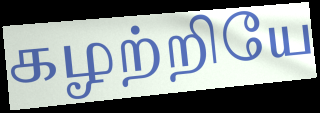
கழற்றியே